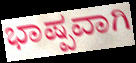
ಭಾಷ್ಪವಾಗಿ